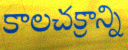
కాలచక్రాన్ని